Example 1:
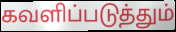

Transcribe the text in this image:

கவளிப்படுத்தும்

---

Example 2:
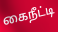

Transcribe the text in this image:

கைநீட்டி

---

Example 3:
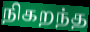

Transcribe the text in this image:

நிகறந்த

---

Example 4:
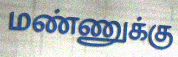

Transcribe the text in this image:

மண்ணுக்கு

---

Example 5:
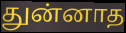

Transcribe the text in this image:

துன்னாத